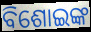
ବିଶୋଇଙ୍କ